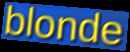
blonde